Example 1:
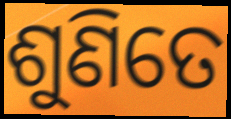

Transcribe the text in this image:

ଶୁଣିତେ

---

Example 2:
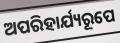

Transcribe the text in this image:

ଅପରିହାର୍ଯ୍ୟରୂପେ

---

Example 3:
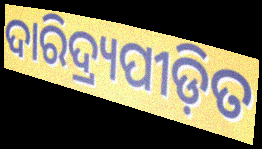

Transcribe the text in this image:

ଦାରିଦ୍ର୍ୟପୀଡ଼ିତ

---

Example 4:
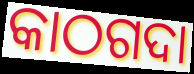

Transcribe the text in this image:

କାଠଗଦା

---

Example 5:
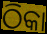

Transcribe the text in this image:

ଠିକା